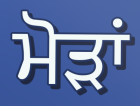
ਮੋੜਾਂ